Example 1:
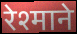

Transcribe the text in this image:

रेश्माने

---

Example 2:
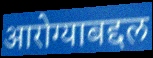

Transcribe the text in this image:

आरोग्याबद्दल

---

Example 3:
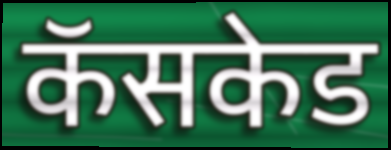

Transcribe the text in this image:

कॅसकेड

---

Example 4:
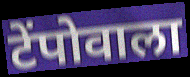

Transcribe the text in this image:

टेंपोवाला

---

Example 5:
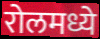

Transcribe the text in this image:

रोलमध्ये